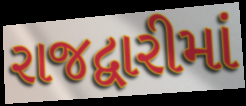
રાજદ્વારીમાં